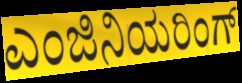
ಎಂಜಿನಿಯರಿಂಗ್